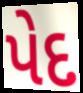
પેદ